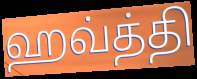
ஹவ்த்தி